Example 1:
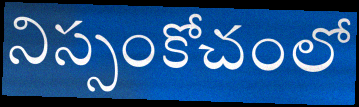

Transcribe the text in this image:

నిస్సంకోచంలో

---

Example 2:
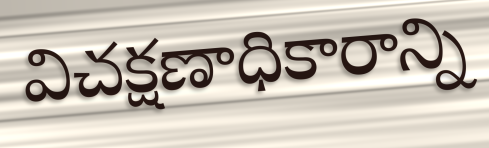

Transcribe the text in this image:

విచక్షణాధికారాన్ని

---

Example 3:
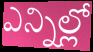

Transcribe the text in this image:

ఎన్నిల్లో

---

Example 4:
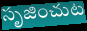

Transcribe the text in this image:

సృజించుట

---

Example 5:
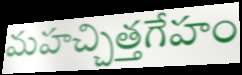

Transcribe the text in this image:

మహచ్చిత్తగేహం